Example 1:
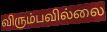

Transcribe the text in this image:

விரும்பவில்லை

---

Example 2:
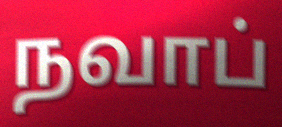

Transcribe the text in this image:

நவாப்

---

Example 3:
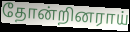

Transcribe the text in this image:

தோன்றினராய்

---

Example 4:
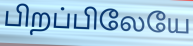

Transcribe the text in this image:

பிறப்பிலேயே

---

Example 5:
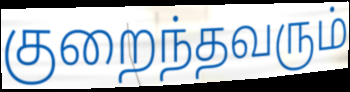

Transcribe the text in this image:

குறைந்தவரும்